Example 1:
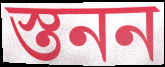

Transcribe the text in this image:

স্তনন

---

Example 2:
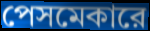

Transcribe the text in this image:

পেসমেকারে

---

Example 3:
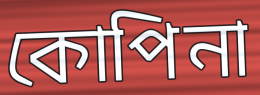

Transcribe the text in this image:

কোপিনা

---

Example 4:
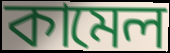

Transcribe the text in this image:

কামেল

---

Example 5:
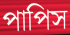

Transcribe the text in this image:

পাপিস